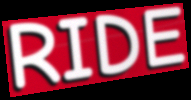
RIDE